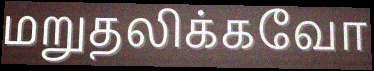
மறுதலிக்கவோ